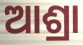
ଆଶ୍ରା